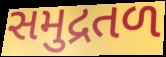
સમુદ્રતળ